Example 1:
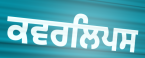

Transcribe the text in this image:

ਕਵਰਲਿਪਸ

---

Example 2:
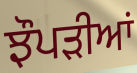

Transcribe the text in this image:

ਝੌਪੜੀਆਂ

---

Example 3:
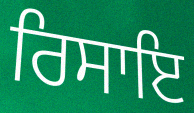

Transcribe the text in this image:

ਰਿਸਾਇ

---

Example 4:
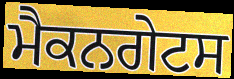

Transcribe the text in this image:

ਮੈਕਨਗੇਟਸ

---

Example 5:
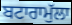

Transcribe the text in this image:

ਬਟਾਰਾਮੁੱਲਾ